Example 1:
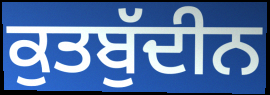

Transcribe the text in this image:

ਕੁਤਬੁੱਦੀਨ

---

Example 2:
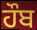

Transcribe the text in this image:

ਹੌਬ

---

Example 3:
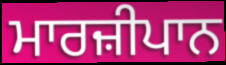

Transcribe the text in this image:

ਮਾਰਜ਼ੀਪਾਨ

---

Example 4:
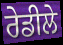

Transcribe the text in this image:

ਰੇਡੀਲੇ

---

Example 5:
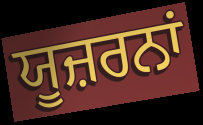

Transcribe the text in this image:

ਯੂਜ਼ਰਨਾਂ